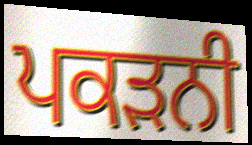
ਪਕੜਨੀ